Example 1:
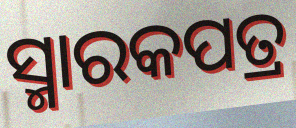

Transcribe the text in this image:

ସ୍ମାରକପତ୍ର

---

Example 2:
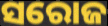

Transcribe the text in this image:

ସରୋଜ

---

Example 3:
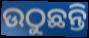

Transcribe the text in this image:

ଉଠୁଛନ୍ତି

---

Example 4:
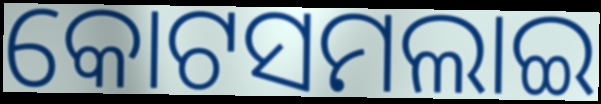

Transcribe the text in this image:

କୋଟସମଲାଇ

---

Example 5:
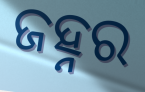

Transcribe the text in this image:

ଜହ୍ନର